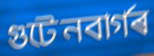
গুটেনবাৰ্গৰ